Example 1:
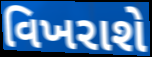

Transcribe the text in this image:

વિખરાશે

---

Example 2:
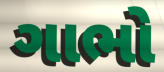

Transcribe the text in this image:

ગાભો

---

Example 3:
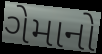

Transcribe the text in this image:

ગેમાનો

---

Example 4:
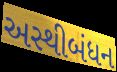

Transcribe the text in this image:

અસ્થીબંધન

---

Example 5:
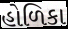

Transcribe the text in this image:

હોળિકા